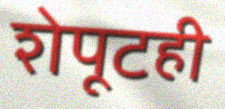
शेपूटही